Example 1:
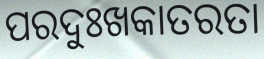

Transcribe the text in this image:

ପରଦୁଃଖକାତରତା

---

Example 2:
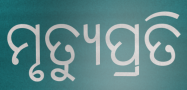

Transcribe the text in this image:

ମୃତ୍ୟୁପ୍ରତି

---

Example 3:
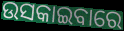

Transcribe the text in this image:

ଉସକାଇବାରେ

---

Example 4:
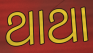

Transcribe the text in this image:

ଥାଥା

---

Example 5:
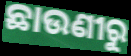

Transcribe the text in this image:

ଛାଉଣୀରୁ